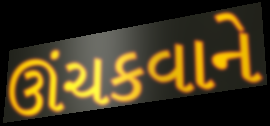
ઊંચકવાને